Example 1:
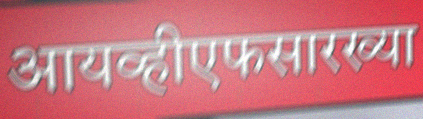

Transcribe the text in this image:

आयव्हीएफसारख्या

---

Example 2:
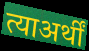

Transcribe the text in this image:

त्याअर्थीं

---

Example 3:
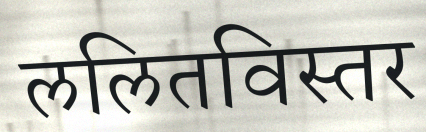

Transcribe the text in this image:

ललितविस्तर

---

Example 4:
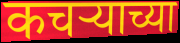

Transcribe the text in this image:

कचर्‍याच्या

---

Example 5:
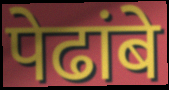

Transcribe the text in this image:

पेढांबे